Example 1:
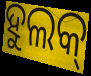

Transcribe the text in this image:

ହୁଲକ୍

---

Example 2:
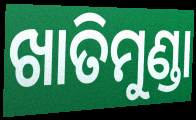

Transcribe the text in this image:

ଖାତିମୁଣ୍ଡା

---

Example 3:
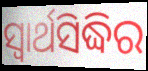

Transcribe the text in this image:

ସ୍ଵାର୍ଥସିଦ୍ଧିର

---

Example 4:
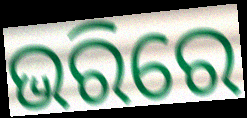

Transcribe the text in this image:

ଭରିରେ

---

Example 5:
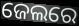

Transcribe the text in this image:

ଜେଲରେ